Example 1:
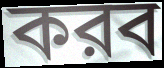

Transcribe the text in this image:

করব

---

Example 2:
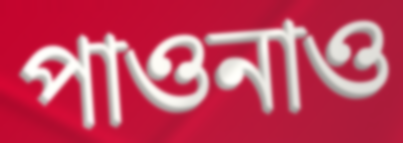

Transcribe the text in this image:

পাওনাও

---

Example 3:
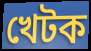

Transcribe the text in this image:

খেটক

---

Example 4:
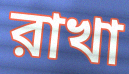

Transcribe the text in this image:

রাখা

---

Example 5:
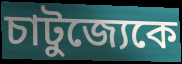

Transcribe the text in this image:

চাটুজ্যেকে